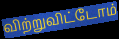
விற்றுவிட்டோம்